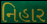
નિહાર